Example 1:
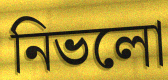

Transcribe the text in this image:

নিভলো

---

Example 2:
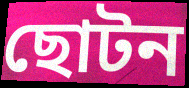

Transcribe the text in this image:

ছোটন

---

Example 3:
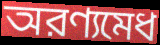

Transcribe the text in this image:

অরণ্যমেধ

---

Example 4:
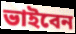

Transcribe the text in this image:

ভাইবেন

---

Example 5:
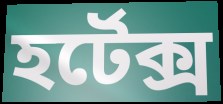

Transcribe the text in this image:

হর্টেক্স